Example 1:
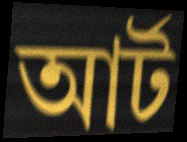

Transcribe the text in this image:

আর্ট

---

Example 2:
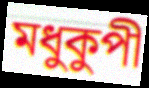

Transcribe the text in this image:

মধুকুপী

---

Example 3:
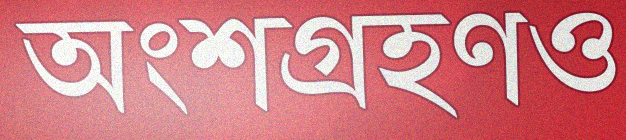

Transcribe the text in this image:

অংশগ্রহণও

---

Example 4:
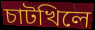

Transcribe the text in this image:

চাটখিলে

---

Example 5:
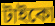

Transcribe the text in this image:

টাইকো